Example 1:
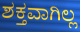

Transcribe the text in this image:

ಶಕ್ತವಾಗಿಲ್ಲ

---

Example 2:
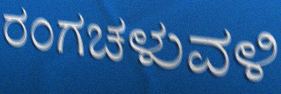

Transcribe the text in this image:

ರಂಗಚಳುವಳಿ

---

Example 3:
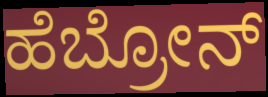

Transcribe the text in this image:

ಹೆಬ್ರೋನ್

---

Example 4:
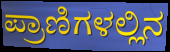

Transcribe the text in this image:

ಪ್ರಾಣಿಗಳಲ್ಲಿನ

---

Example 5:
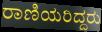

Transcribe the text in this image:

ರಾಣಿಯರಿದ್ದರು